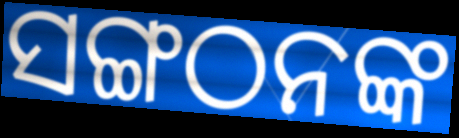
ସଙ୍ଗଠନଙ୍କ